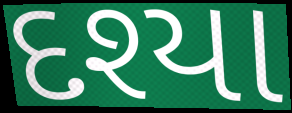
દશ્યા